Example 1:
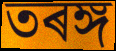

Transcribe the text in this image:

তৰঙ্গ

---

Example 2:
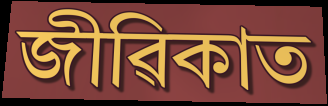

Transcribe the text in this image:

জীৱিকাত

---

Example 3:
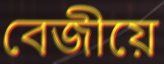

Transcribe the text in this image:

বেজীয়ে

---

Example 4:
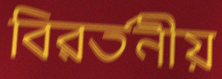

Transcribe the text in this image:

বিৱৰ্তনীয়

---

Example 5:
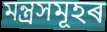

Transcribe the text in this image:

মন্ত্ৰসমূহৰ